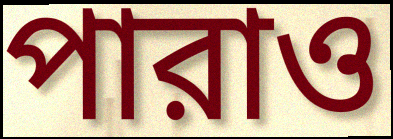
পারাও